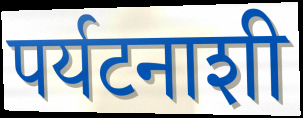
पर्यटनाशी